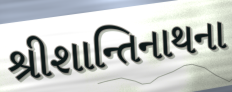
શ્રીશાન્તિનાથના